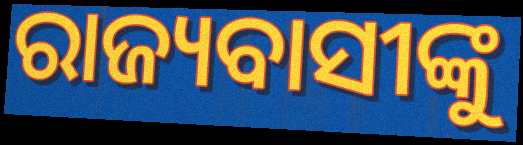
ରାଜ୍ୟବାସୀଙ୍କୁ